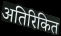
अतिरिकित